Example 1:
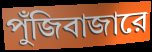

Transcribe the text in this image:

পুঁজিবাজারে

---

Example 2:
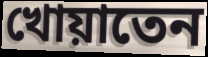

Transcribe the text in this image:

খোয়াতেন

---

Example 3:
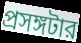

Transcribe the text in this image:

প্রসঙ্গটার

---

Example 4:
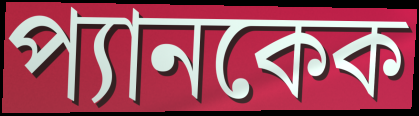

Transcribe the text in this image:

প্যানকেক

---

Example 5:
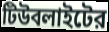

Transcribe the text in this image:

টিউবলাইটের